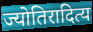
ज्योतिरादित्य